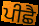
ਪੀਛੈ